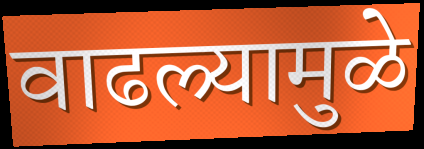
वाढल्यामुळे